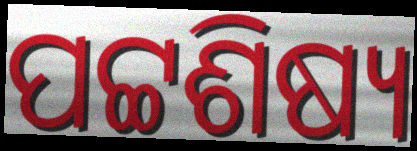
ପଟ୍ଟଶିଷ୍ୟ